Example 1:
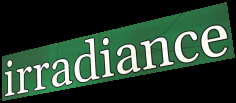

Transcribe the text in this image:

irradiance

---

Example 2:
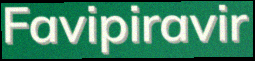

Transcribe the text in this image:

Favipiravir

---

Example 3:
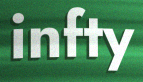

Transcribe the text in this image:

infty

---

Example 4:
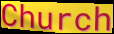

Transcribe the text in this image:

Church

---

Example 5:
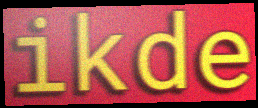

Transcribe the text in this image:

ikde